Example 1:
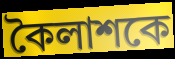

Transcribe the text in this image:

কৈলাশকে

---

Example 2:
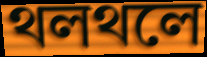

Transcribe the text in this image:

থলথলে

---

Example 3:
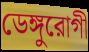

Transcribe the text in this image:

ডেঙ্গুরোগী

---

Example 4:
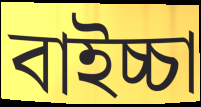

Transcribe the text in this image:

বাইচ্চা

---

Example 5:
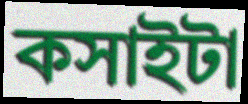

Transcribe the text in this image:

কসাইটা